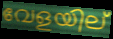
വേളയില്